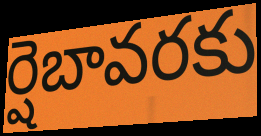
ర్షెబావరకు